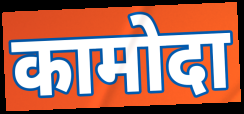
कामोदा